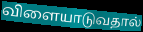
விளையாடுவதால்